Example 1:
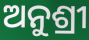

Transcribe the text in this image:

ଅନୁଶ୍ରୀ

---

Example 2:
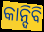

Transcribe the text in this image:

କାନ୍ଦିବି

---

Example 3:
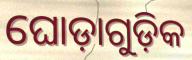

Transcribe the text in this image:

ଘୋଡ଼ାଗୁଡ଼ିକ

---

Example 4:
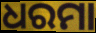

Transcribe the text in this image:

ଧରମା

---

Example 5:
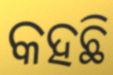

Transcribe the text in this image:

କହଛି